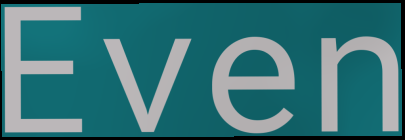
Even